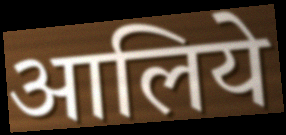
आलिये